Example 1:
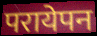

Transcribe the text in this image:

परायेपन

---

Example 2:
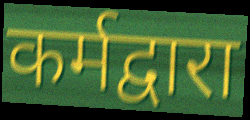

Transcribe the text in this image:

कर्मद्वारा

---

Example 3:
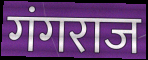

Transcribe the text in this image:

गंगराज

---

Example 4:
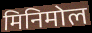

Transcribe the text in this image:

मिनिमोल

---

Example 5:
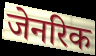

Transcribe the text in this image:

जेनरिक